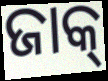
ଜାକ୍